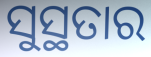
ସୁସ୍ଥତାର